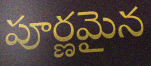
పూర్ణమైన